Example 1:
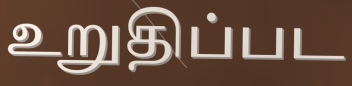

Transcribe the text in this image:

உறுதிப்பட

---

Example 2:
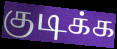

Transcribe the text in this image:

குடிக்க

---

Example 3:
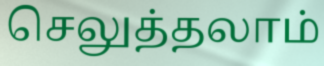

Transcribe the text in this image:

செலுத்தலாம்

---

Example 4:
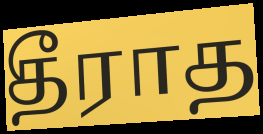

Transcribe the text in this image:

தீராத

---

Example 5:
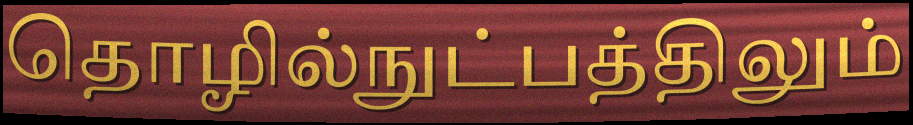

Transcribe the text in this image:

தொழில்நுட்பத்திலும்